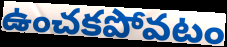
ఉంచకపోవటం